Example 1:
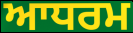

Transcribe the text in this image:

ਆਧਰਮ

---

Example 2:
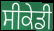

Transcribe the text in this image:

ਸੀਕੇਡੀ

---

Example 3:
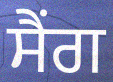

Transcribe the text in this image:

ਸੈਂਗ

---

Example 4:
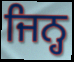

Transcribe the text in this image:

ਜਿਨ੍ਹ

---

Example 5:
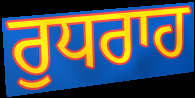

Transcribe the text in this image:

ਰੁਧਰਾਹ